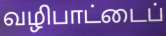
வழிபாட்டைப்